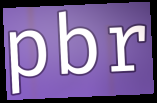
pbr